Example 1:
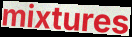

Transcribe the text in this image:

mixtures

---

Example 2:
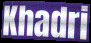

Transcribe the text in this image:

Khadri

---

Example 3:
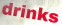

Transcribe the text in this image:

drinks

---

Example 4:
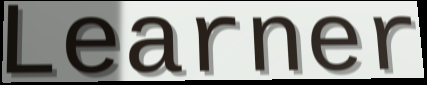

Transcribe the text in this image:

Learner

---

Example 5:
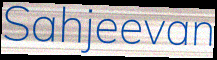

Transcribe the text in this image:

Sahjeevan